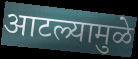
आटल्यामुळे